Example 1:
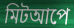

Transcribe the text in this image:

মিটআপে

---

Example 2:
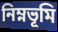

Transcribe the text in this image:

নিম্নভূমি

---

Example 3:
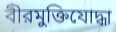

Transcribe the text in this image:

বীরমুক্তিযোদ্ধা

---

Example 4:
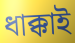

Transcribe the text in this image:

ধাক্কাই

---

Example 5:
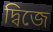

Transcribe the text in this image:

দ্বিজে